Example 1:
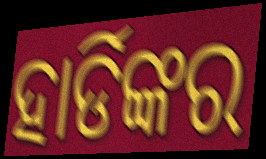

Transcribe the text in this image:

ହାର୍ଡିଙ୍କର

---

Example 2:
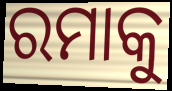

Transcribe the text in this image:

ରମାକୁ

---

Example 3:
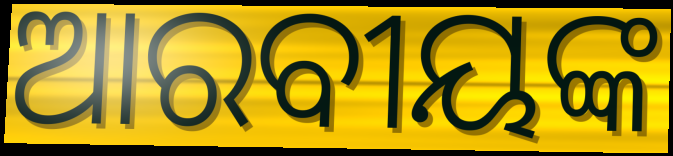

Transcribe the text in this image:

ଆରବୀୟଙ୍କ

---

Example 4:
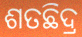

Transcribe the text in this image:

ଶତଛିଦ୍ର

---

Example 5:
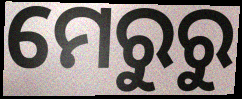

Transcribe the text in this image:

ମେରୁରୁ